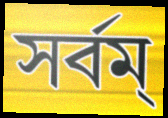
সর্বম্